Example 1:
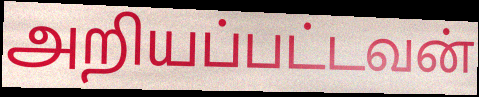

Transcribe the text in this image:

அறியப்பட்டவன்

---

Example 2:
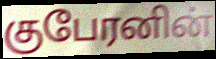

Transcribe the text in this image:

குபேரனின்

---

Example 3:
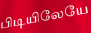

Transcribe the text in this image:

பிடியிலேயே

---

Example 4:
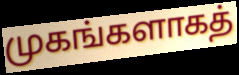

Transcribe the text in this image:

முகங்களாகத்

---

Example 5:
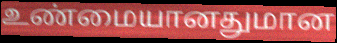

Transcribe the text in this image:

உண்மையானதுமான